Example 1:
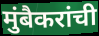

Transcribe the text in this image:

मुंबैकरांची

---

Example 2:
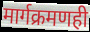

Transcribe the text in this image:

मार्गक्रमणही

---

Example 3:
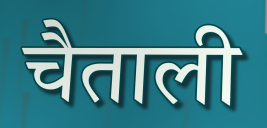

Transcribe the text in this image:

चैताली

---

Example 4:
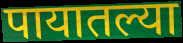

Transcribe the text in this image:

पायातल्या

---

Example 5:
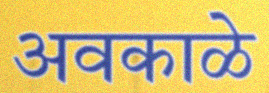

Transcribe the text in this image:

अवकाळे